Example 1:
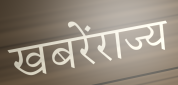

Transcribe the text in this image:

खबरेंराज्य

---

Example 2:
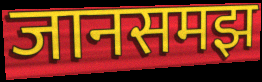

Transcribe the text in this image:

जानसमझ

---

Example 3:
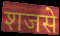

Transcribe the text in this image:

शजसे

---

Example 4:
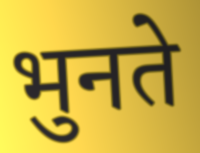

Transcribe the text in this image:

भुनते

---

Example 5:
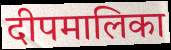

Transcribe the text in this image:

दीपमालिका